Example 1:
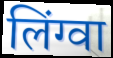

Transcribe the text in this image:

लिंग्वा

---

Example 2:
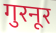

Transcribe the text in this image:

गुरनूर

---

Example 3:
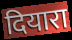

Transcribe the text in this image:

दियारा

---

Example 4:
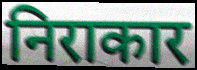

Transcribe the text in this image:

निराकार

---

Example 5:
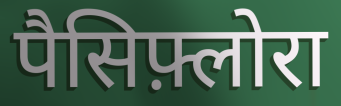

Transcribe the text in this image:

पैसिफ़्लोरा